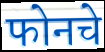
फोनचे